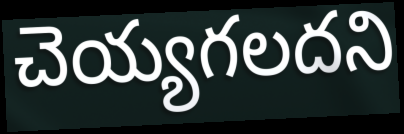
చెయ్యగలదని